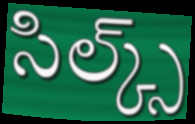
సిల్క్స్